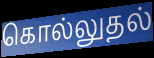
கொல்லுதல்